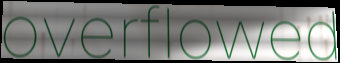
overflowed